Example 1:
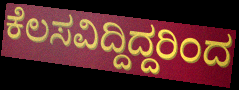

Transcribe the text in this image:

ಕೆಲಸವಿದ್ದಿದ್ದರಿಂದ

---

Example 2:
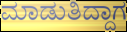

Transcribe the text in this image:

ಮಾಡುತಿದ್ದಾಗ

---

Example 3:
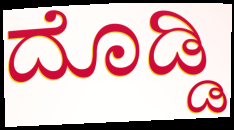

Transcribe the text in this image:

ದೊಡ್ಡಿ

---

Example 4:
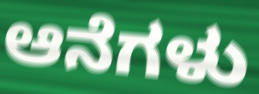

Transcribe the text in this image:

ಆನೆಗಳು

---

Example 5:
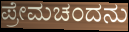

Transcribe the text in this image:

ಪ್ರೇಮಚಂದನು